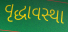
વૃદ્ધાવસ્થા